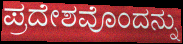
ಪ್ರದೇಶವೊಂದನ್ನು